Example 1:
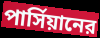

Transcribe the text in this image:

পার্সিয়ানের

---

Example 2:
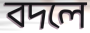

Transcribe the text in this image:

বদলে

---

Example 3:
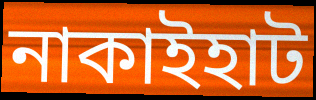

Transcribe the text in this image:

নাকাইহাট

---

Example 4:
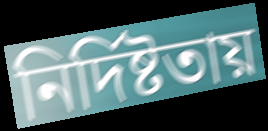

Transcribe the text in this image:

নির্দিষ্টতায়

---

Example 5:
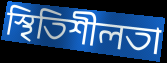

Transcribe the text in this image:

স্থিতিশীলতা